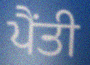
ਪੈਂਤੀ